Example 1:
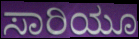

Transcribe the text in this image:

ಸಾರಿಯೂ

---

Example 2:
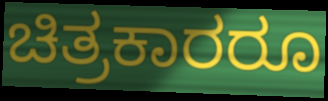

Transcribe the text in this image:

ಚಿತ್ರಕಾರರೂ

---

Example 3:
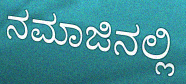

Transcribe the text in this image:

ನಮಾಜಿನಲ್ಲಿ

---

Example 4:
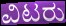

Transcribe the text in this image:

ವಿಟರು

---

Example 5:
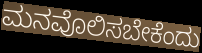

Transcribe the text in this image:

ಮನವೊಲಿಸಬೇಕೆಂದು